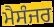
ਮੈਸੰਜਰ